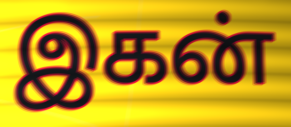
இகன்